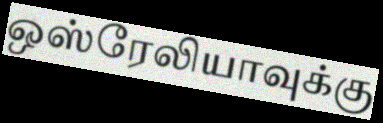
ஒஸ்ரேலியாவுக்கு